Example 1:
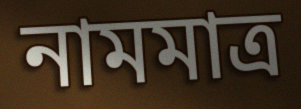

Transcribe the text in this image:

নামমাত্র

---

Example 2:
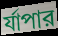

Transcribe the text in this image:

র্যাপার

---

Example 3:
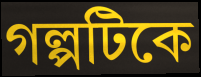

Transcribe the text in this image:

গল্পটিকে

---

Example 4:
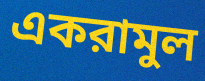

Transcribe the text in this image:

একরামুল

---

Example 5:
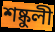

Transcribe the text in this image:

শষ্কুলী